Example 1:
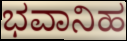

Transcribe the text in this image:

ಭವಾನಿಹ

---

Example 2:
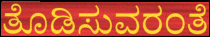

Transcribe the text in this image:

ತೊಡಿಸುವರಂತೆ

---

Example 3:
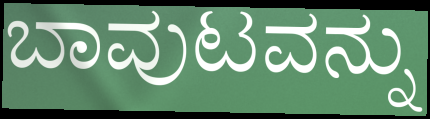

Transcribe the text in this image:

ಬಾವುಟವನ್ನು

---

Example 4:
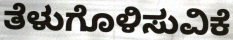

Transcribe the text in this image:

ತೆಳುಗೊಳಿಸುವಿಕೆ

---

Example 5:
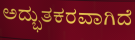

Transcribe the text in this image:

ಅದ್ಭುತಕರವಾಗಿದೆ